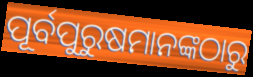
ପୂର୍ବପୁରୁଷମାନଙ୍କଠାରୁ